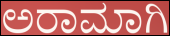
ಅರಾಮಾಗಿ